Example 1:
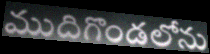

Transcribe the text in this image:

ముదిగొండలోను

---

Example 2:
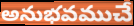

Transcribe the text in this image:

అనుభవముచే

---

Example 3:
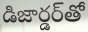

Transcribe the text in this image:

డిజార్డర్‌తో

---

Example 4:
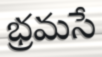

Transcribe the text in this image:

భ్రమసే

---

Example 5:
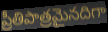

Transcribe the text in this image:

ప్రీతిపాత్రమైనదిగా